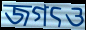
জগৎও